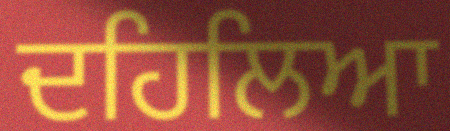
ਦਹਿਲਿਆ